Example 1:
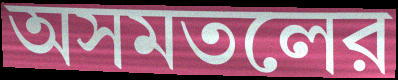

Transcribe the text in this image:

অসমতলের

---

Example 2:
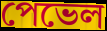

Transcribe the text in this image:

পেভেল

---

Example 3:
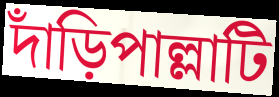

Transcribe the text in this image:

দাঁড়িপাল্লাটি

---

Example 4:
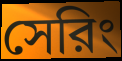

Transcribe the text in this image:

সেরিং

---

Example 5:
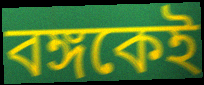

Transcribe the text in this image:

বঙ্গকেই